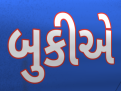
બુકીએ